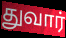
துவார்